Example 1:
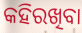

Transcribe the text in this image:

କହିରଖିବା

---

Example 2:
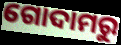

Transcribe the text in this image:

ଗୋଦାମରୁ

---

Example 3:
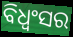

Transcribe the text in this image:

ବିଧ୍ୱଂସର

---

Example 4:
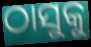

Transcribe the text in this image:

ଠାସୁକୁ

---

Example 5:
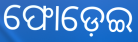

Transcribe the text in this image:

ଫୋଡ଼େଇ